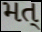
મત્